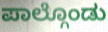
ಪಾಲ್ಗೊಂಡು